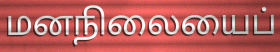
மனநிலையைப்